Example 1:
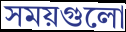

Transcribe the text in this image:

সময়গুলো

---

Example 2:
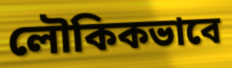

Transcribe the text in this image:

লৌকিকভাবে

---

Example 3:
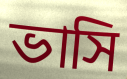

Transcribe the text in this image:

ভাসি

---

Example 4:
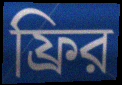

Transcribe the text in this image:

ফ্রির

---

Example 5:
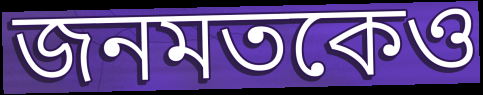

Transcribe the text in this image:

জনমতকেও